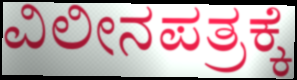
ವಿಲೀನಪತ್ರಕ್ಕೆ